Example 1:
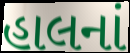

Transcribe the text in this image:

હાલનાં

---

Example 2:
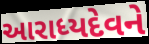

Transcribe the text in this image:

આરાધ્યદેવને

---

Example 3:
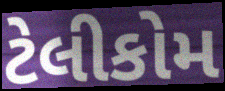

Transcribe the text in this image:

ટેલીકોમ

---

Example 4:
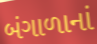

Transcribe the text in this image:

બંગાળાનાં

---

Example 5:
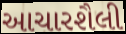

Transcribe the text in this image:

આચારશૈલી